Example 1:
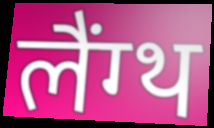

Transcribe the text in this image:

लैंग्थ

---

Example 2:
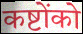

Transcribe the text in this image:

कष्टोंको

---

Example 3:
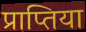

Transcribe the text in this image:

प्राप्तिया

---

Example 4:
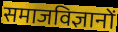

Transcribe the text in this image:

समाजविज्ञानों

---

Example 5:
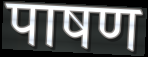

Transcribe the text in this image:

पाषण